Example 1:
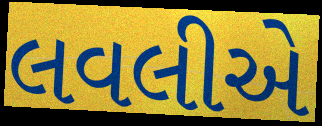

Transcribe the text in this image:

લવલીએ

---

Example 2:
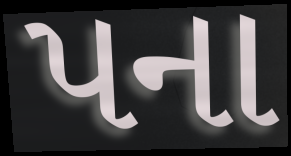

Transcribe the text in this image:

પના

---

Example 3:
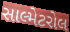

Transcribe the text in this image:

સાલ્મેટરોલ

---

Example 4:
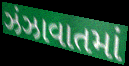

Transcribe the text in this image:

ઝંઝાવાતમાં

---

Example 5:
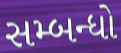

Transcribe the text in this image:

સમ્બન્ધો